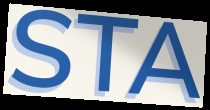
STA